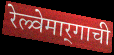
रेल्वेमार्गाची